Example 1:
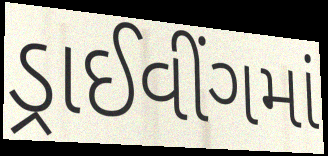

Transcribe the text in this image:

ડ્રાઈવીંગમાં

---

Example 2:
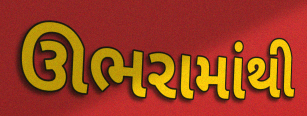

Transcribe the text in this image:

ઊભરામાંથી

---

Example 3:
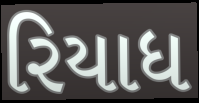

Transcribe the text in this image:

રિયાધ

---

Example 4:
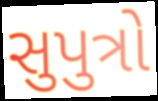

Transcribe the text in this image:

સુપુત્રો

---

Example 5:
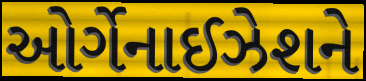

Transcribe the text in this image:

ઓર્ગેનાઈઝેશને